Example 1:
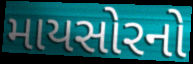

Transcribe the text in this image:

માયસોરનો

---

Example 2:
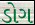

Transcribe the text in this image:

ડોગ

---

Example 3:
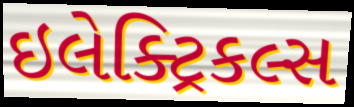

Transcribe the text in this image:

ઇલેક્ટ્રિકલ્સ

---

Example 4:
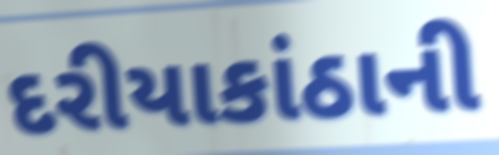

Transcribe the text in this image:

દરીયાકાંઠાની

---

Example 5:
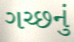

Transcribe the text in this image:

ગચ્છનું